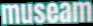
museam